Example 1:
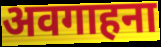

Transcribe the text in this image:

अवगाहना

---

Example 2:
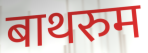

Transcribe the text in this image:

बाथरुम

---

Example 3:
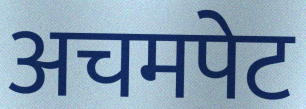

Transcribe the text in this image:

अचमपेट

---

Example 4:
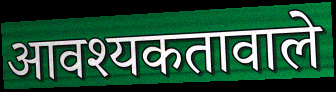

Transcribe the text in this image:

आवश्यकतावाले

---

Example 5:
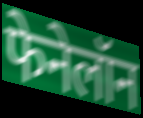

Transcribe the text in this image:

फेनेलॉन